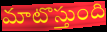
మాటొస్తుంది